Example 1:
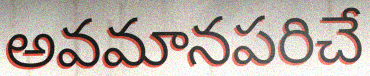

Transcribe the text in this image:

అవమానపరిచే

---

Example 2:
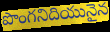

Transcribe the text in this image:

పొంగనిదియునైన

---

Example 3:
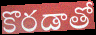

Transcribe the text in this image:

కొరడాతో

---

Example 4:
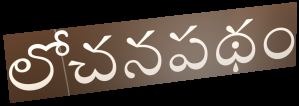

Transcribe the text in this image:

లోచనపథం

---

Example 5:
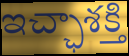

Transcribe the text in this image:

ఇచ్ఛాశక్తి